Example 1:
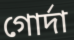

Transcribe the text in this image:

গোর্দা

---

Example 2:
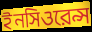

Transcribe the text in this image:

ইনসিওরেন্স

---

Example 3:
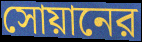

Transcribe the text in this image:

সোয়ানের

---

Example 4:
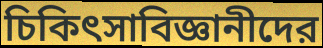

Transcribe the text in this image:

চিকিৎসাবিজ্ঞানীদের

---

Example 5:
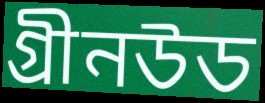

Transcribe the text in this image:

গ্রীনউড